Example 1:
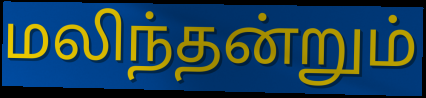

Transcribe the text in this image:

மலிந்தன்றும்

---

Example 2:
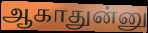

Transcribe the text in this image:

ஆகாதுன்னு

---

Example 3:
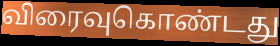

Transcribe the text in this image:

விரைவுகொண்டது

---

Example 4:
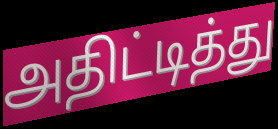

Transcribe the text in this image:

அதிட்டித்து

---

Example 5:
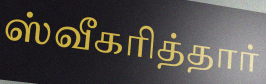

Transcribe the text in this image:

ஸ்வீகரித்தார்